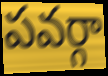
పవర్గా